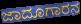
ಜಾದೂಗಾರನ